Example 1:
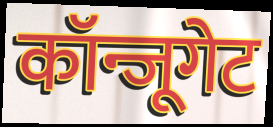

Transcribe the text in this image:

कॉन्जूगेट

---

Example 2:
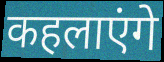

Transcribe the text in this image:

कहलाएंगे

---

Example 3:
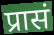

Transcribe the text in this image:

प्रासं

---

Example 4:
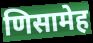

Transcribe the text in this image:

णिसामेह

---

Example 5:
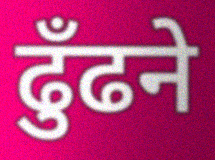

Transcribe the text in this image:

ढुँढने